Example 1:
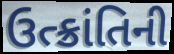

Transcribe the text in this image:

ઉત્ક્રાંતિની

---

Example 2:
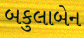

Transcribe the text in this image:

બકુલાબેન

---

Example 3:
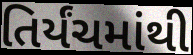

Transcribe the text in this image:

તિર્યંચમાંથી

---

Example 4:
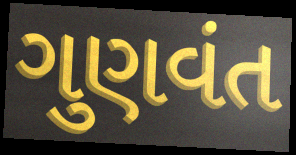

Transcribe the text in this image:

ગુણવંત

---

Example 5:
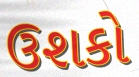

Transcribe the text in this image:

ઉશકો